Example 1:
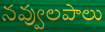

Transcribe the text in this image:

నవ్వులపాలు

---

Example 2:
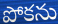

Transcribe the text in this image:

పోకను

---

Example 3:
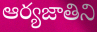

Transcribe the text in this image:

ఆర్యజాతిని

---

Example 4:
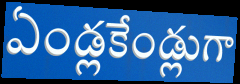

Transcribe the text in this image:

ఏండ్లకేండ్లుగా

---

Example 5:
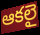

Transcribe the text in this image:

ఆకలై